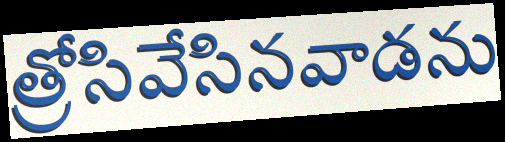
త్రోసివేసినవాడను